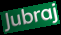
Jubraj